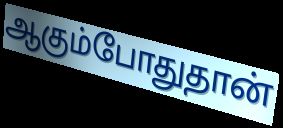
ஆகும்போதுதான்